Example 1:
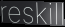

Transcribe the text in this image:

reskill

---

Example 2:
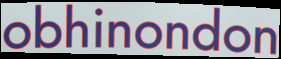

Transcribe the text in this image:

obhinondon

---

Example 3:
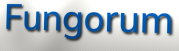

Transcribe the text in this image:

Fungorum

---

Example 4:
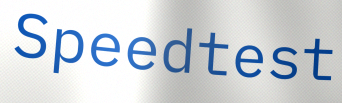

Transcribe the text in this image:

Speedtest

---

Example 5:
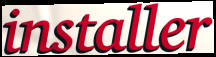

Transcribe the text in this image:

installer